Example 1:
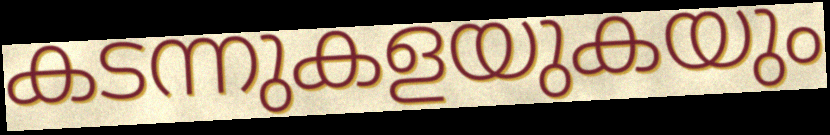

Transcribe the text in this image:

കടന്നുകളയുകയും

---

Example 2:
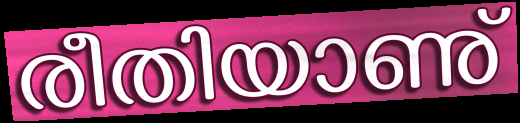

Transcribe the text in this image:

രീതിയാണു്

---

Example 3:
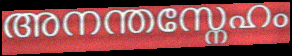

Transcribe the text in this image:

അനന്തസ്നേഹം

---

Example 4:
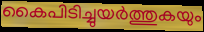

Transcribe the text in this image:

കൈപിടിച്ചുയർത്തുകയും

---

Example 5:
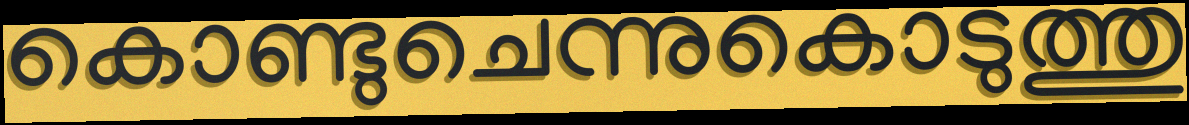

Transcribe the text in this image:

കൊണ്ടുചെന്നുകൊടുത്തു